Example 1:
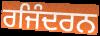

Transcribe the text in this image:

ਰਜਿੰਦਰਨ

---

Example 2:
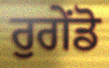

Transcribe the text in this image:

ਰੁਗੇਂਡੋ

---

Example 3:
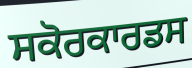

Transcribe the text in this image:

ਸਕੋਰਕਾਰਡਸ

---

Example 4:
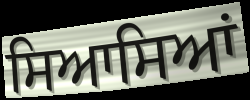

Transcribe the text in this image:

ਸਿਆਸਿਆਂ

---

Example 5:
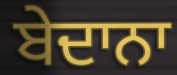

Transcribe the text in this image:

ਬੇਦਾਨਾ